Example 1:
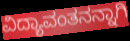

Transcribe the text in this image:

ವಿದ್ಯಾವಂತನನ್ನಾಗಿ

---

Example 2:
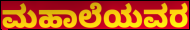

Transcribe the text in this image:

ಮಹಾಲೆಯವರ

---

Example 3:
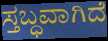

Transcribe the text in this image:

ಸ್ತಬ್ಧವಾಗಿದೆ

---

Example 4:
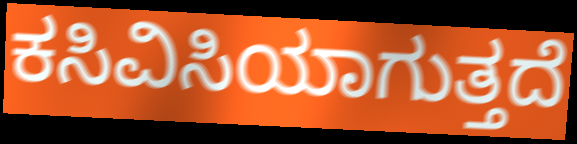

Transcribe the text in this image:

ಕಸಿವಿಸಿಯಾಗುತ್ತದೆ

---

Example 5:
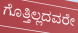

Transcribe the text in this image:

ಗೊತ್ತಿಲ್ಲದವರೇ